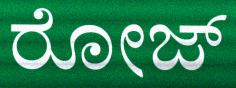
ರೋಜ್